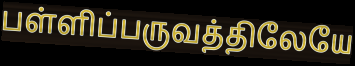
பள்ளிப்பருவத்திலேயே